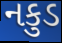
નકુડ